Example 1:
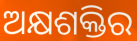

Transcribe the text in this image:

ଅକ୍ଷଶକ୍ତିର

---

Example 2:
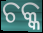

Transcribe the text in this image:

ଚକ୍କ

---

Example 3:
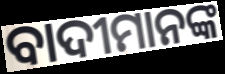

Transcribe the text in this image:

ବାଦୀମାନଙ୍କ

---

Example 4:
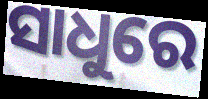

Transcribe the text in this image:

ସାଧୁରେ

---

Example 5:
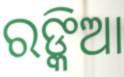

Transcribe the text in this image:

ରଙ୍କିଆ